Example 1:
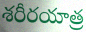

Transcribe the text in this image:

శరీరయాత్ర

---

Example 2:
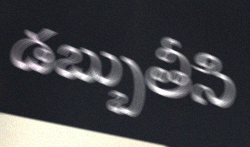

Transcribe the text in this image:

డబ్బుతీసి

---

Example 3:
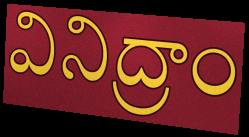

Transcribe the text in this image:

వినిద్రాం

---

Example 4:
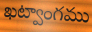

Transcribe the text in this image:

ఖట్వాంగము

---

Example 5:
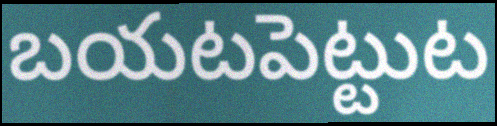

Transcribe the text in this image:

బయటపెట్టుట